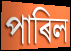
পাৰিল